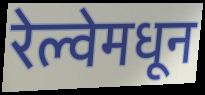
रेल्वेमधून